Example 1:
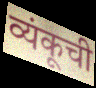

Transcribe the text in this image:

व्यंकूची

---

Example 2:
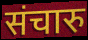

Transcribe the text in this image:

संचारु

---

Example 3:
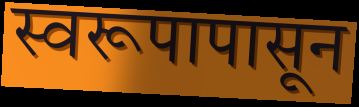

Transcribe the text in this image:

स्वरूपापासून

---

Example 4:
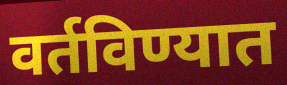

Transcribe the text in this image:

वर्तविण्यात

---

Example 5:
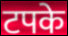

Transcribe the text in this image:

टपके